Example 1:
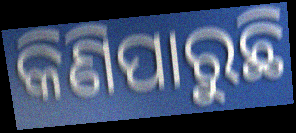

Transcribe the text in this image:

କିଣିପାରୁଛି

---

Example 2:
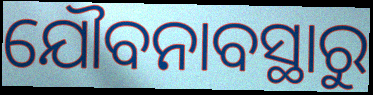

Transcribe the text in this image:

ଯୌବନାବସ୍ଥାରୁ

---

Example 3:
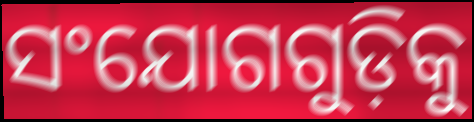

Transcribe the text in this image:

ସଂଯୋଗଗୁଡ଼ିକୁ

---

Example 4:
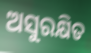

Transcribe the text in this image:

ଅସୁରକ୍ଷିତ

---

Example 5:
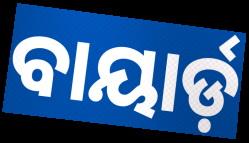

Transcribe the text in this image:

ବାୟାର୍ଡ଼